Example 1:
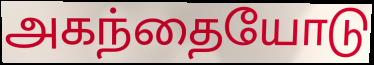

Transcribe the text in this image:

அகந்தையோடு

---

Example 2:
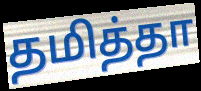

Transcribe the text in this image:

தமித்தா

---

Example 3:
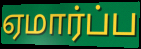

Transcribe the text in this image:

ஏமார்ப்ப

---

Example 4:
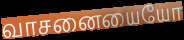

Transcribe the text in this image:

வாசனையையோ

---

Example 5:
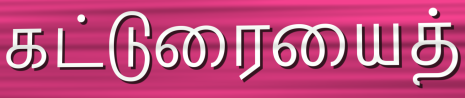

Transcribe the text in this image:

கட்டுரையைத்